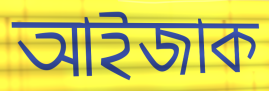
আইজাক